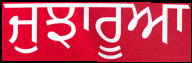
ਜੁਝਾਰੂਆ